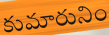
కుమారునిం